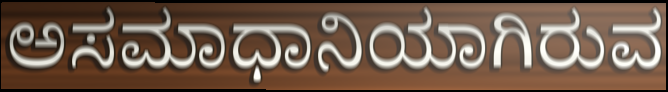
ಅಸಮಾಧಾನಿಯಾಗಿರುವ